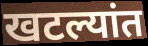
खटल्यांत